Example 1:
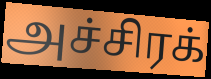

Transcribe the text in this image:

அச்சிரக்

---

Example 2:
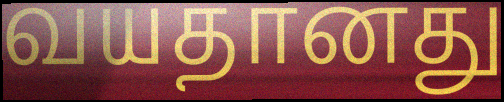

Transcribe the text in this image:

வயதானது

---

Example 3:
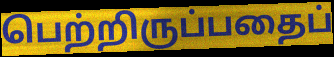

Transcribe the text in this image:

பெற்றிருப்பதைப்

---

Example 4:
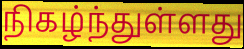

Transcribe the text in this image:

நிகழ்ந்துள்ளது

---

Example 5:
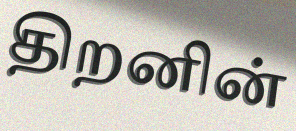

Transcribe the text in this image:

திறனின்